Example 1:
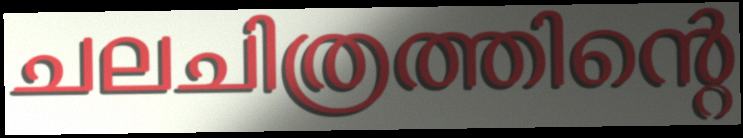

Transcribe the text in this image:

ചലചിത്രത്തിന്റെ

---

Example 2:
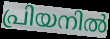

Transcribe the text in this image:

പ്രിയനിൽ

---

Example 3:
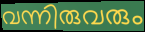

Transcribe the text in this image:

വന്നിരുവരും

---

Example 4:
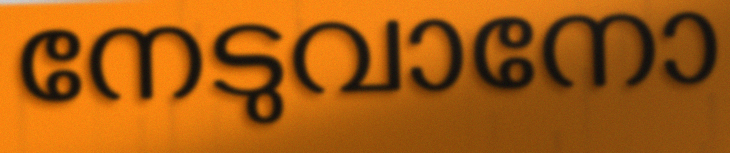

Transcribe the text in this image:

നേടുവാനോ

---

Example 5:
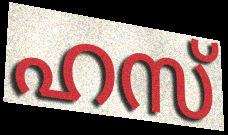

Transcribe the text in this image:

ഹസ്